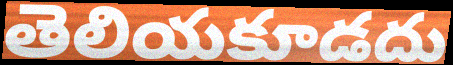
తెలియకూడదు